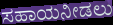
ಸಹಾಯನೀಡಲು